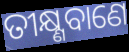
ତୀକ୍ଷ୍ଣବାଣେ